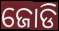
ଜୋଡି